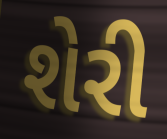
શેરી